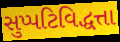
સુપ્પટિવિદ્ધત્તા